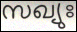
സഖ്യുഃ